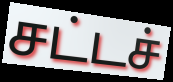
சட்டச்